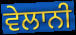
ਵੇਲਾਨੀ